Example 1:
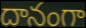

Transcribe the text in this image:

దానంగా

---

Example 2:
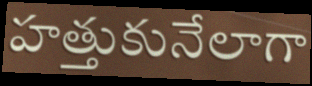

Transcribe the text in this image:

హత్తుకునేలాగా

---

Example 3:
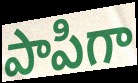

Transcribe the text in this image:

పాపిగా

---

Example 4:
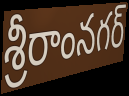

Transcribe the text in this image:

శ్రీరాంనగర్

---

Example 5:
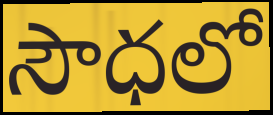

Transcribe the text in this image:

సౌధలో